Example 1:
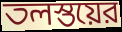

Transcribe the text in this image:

তলস্তয়ের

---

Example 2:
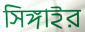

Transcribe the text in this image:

সিঙ্গাইর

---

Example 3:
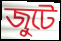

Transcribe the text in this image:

জুটে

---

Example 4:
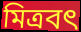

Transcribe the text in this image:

মিত্রবৎ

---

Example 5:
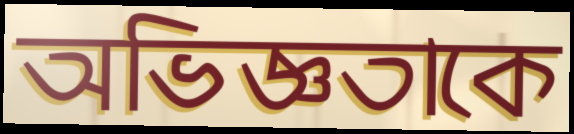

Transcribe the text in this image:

অভিজ্ঞতাকে